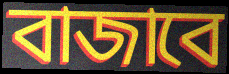
বাজাবে